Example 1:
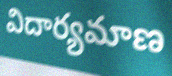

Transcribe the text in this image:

విదార్యమాణ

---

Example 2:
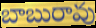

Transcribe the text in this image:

బాబురావు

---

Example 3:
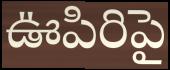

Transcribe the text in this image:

ఊపిరిపై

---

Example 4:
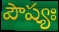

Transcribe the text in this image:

పౌష్యః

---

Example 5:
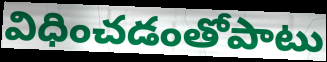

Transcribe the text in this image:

విధించడంతోపాటు